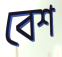
বেশ